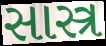
સાસ્ત્ર